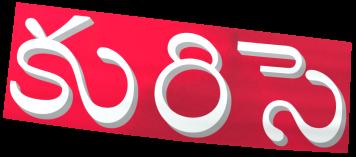
కురిసె